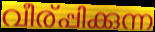
വീര്പ്പിക്കുന്ന